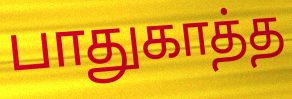
பாதுகாத்த